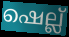
ഷെല്ല്